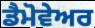
ਡੈਮੋਵੇਅਰ